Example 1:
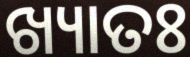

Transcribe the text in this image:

ଖ୍ୟାତଃ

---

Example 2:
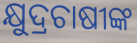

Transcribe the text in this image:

କ୍ଷୁଦ୍ରଚାଷୀଙ୍କ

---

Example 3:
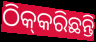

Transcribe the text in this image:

ଠିକ୍‌କରିଛନ୍ତି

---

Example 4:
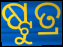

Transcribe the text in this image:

ଷ୍ଟୁତ୍ର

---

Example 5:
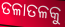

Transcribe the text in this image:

ତଳାତଳକୁ